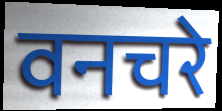
वनचरे